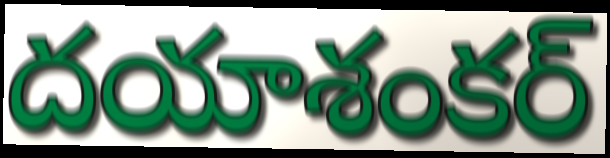
దయాశంకర్